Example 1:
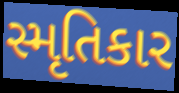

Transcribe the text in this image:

સ્મૃતિકાર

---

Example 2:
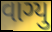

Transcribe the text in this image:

વાગ્યુ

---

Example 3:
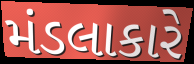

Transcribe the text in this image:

મંડલાકારે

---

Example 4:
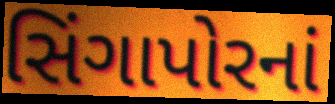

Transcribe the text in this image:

સિંગાપોરનાં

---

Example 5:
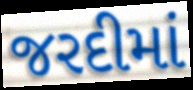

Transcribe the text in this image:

જરદીમાં